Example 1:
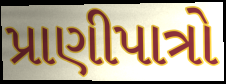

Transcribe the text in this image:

પ્રાણીપાત્રો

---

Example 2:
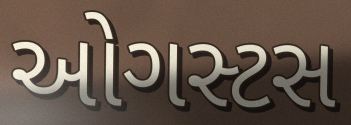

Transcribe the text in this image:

ઓગસ્ટસ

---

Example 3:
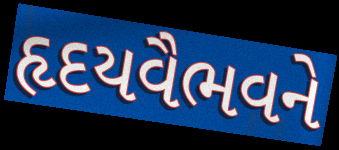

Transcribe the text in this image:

હૃદયવૈભવને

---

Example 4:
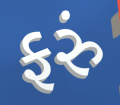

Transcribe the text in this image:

ફરું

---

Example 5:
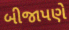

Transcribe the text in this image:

બીજાપણે